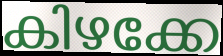
കിഴക്കേ